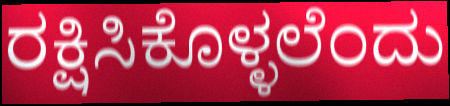
ರಕ್ಷಿಸಿಕೊಳ್ಳಲೆಂದು